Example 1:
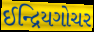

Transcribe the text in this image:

ઈન્દ્રિયગોચર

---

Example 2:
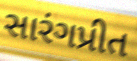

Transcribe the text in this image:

સારંગપ્રીત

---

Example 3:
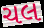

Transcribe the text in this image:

ચલ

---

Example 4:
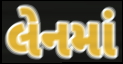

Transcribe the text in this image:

લેનમાં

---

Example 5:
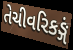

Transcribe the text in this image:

તેચીવરિકઙ્ગં